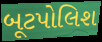
બૂટપોલિશ